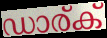
ഡാര്ക്